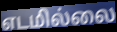
எடமில்லை